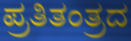
ಪ್ರತಿತಂತ್ರದ